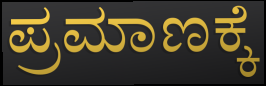
ಪ್ರಮಾಣಕ್ಕೆ